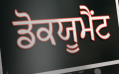
ਡੋਕਯੂਮੈਂਟ